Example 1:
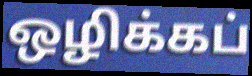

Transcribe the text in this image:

ஒழிக்கப்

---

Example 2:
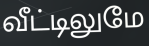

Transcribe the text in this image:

வீட்டிலுமே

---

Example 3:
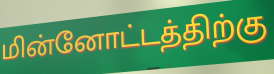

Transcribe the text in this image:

மின்னோட்டத்திற்கு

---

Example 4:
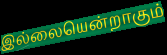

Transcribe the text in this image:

இல்லையென்றாகும்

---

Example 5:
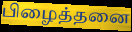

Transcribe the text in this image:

பிழைத்தனை